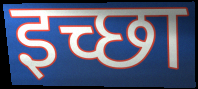
इच्‍छा